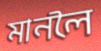
মানলৈ